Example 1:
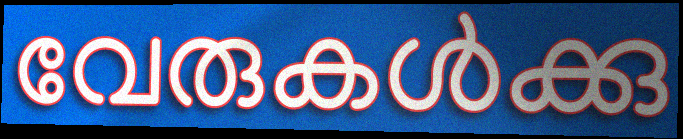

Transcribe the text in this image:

വേരുകൾക്കു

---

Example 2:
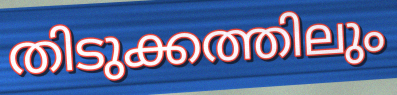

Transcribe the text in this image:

തിടുക്കത്തിലും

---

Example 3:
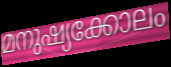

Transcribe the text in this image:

മനുഷ്യക്കോലം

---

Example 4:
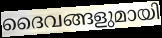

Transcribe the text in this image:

ദൈവങ്ങളുമായി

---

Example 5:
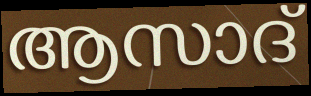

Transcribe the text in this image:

ആസാദ്